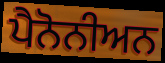
ਪੈਨੋਨੀਅਨ